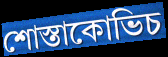
শোস্তাকোভিচ